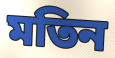
মতিন